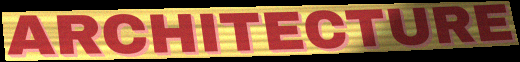
ARCHITECTURE